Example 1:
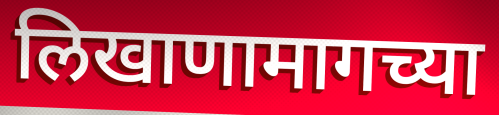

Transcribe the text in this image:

लिखाणामागच्या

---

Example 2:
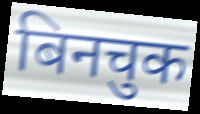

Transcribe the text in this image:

बिनचुक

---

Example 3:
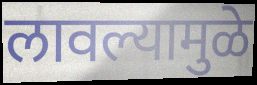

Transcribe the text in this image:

लावल्यामुळे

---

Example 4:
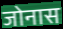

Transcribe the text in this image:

जोनास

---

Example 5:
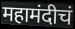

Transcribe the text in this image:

महामंदीचं